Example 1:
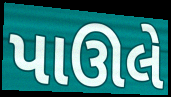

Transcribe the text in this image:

પાઊલે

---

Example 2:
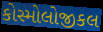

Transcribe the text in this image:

કોસ્મોલોજીકલ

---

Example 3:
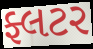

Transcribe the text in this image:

ફ્લટર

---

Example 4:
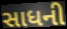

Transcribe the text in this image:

સાધની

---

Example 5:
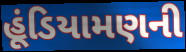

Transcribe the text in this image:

હૂંડિયામણની